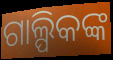
ଗାଲ୍ପିକଙ୍କ